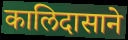
कालिदासाने